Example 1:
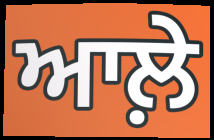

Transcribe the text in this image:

ਆਲ਼ੇ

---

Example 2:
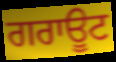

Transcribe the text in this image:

ਗਰਾਊਟ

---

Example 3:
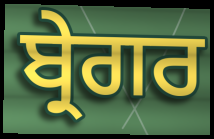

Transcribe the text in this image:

ਬ੍ਰੇਗਰ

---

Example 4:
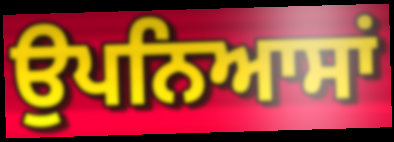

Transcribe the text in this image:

ਉਪਨਿਆਸਾਂ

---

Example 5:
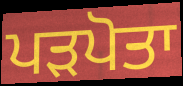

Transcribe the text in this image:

ਪੜਪੋਤਾ